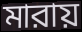
মারায়